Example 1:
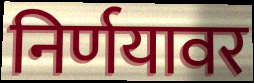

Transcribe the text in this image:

निर्णयावर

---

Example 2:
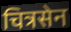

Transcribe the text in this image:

चित्रसेन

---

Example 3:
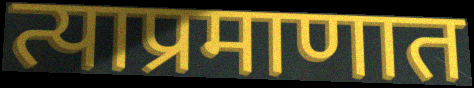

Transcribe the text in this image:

त्याप्रमाणात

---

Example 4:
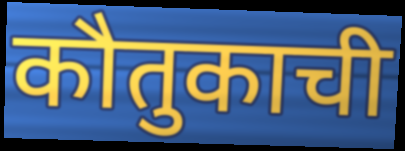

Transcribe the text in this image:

कौतुकाची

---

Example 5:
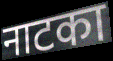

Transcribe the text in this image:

नाटका